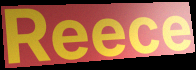
Reece